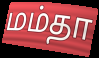
மம்தா